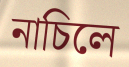
নাচিলে